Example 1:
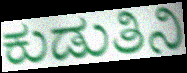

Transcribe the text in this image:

ಕುಡುತಿನಿ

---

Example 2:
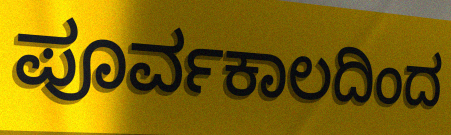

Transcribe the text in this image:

ಪೂರ್ವಕಾಲದಿಂದ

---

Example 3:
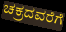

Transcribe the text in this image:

ಚಕ್ರದವರೆಗೆ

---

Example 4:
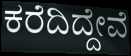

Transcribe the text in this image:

ಕರೆದಿದ್ದೇವೆ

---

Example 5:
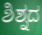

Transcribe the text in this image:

ಶಿಶ್ನದ